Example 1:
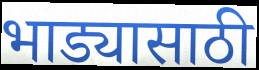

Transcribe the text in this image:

भाड्यासाठी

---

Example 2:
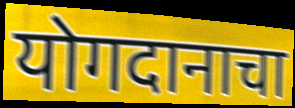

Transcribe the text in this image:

योगदानाचा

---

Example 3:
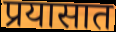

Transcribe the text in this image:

प्रयासात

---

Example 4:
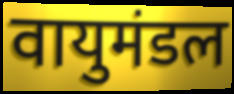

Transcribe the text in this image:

वायुमंडल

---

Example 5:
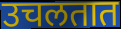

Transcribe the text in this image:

उचलतात